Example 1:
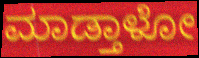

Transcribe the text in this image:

ಮಾಡ್ತಾಳೋ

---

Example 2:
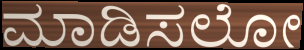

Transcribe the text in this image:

ಮಾಡಿಸಲೋ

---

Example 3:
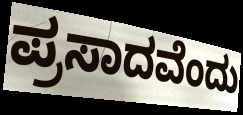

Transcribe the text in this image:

ಪ್ರಸಾದವೆಂದು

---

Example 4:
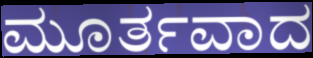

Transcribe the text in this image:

ಮೂರ್ತವಾದ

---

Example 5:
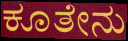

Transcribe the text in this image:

ಕೂತೇನು